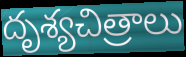
దృశ్యచిత్రాలు